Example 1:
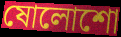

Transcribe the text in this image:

ষোলোশো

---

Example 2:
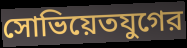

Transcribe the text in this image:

সোভিয়েতযুগের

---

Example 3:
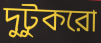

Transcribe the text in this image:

দুটুকরো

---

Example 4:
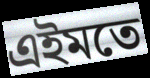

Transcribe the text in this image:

এইমতে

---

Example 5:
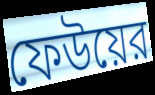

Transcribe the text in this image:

ফেউয়ের